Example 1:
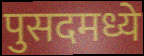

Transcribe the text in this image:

पुसदमध्ये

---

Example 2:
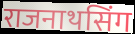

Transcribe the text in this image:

राजनाथसिंग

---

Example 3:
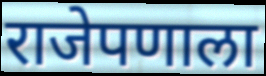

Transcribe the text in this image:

राजेपणाला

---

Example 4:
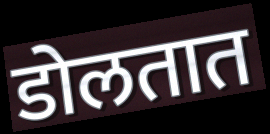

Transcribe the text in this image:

डोलतात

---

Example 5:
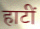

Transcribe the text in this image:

हाटीं